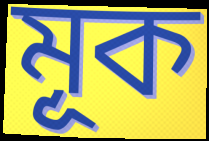
মূক